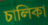
চালিকা